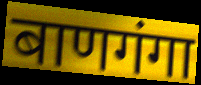
बाणगंगा